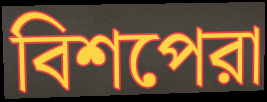
বিশপেরা